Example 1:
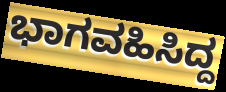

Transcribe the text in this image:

ಭಾಗವಹಿಸಿದ್ದ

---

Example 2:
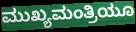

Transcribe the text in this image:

ಮುಖ್ಯಮಂತ್ರಿಯೂ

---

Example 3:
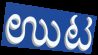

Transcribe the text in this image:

ಉುಟ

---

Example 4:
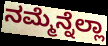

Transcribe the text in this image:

ನಮ್ಮೆನ್ನೆಲ್ಲಾ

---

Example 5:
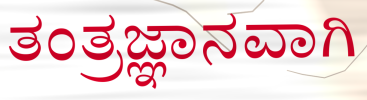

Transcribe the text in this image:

ತಂತ್ರಜ್ಞಾನವಾಗಿ